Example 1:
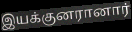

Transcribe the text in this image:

இயக்குனரானார்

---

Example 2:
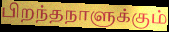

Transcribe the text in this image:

பிறந்தநாளுக்கும்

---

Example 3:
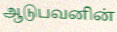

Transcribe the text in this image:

ஆடுபவனின்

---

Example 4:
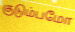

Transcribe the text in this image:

குடும்பமோ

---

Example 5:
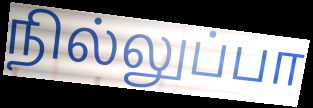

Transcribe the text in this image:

நில்லுப்பா